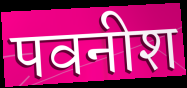
पवनीश